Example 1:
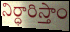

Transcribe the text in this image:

నిర్ధారిస్తాం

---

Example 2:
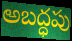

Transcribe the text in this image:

అబద్ధపు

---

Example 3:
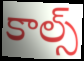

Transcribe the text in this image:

కాల్స్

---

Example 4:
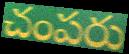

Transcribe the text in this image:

చంపరు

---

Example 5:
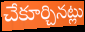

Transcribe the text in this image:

చేకూర్చినట్లు